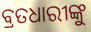
ବ୍ରତଧାରୀଙ୍କୁ